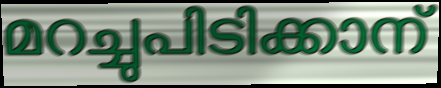
മറച്ചുപിടിക്കാന്